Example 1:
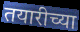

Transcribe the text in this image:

तयारीच्या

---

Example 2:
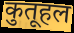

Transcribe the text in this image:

कुतूहल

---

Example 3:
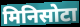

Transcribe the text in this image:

मिनिसोटा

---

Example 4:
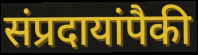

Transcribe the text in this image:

संप्रदायांपैकी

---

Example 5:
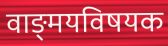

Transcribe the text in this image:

वाङ्मयविषयक